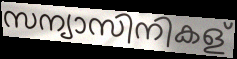
സന്യാസിനികള്